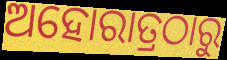
ଅହୋରାତ୍ରଠାରୁ